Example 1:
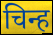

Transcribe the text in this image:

चिन्ह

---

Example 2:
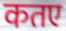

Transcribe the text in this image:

कतए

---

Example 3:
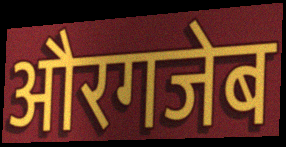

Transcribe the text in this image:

औरगजेब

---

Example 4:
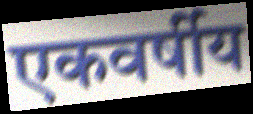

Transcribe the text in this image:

एकवर्षीय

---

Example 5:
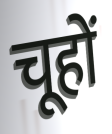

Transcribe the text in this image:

चूहों